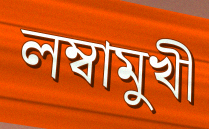
লম্বামুখী